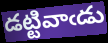
డట్టివాఁడు